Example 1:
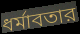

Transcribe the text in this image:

ধর্মাবতার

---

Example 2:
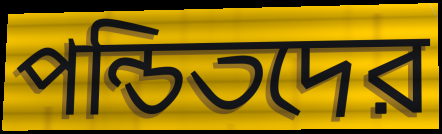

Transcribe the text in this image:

পন্ডিতদের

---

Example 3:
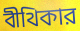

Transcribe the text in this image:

বীথিকার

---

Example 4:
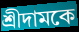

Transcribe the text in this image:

শ্রীদামকে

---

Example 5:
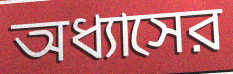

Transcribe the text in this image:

অধ্যাসের